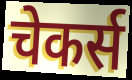
चेकर्स